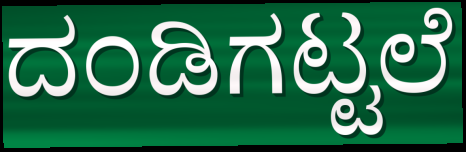
ದಂಡಿಗಟ್ಟಲೆ